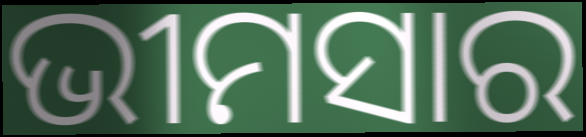
ଭୀମସାର